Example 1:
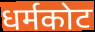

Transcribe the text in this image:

धर्मकोट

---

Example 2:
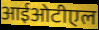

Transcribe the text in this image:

आईओटीएल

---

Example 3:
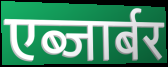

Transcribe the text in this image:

एब्जार्बर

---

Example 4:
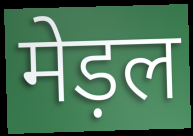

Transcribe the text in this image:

मेड़ल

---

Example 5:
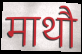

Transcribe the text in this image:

माथौ